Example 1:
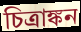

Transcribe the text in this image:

চিত্রাঙ্কন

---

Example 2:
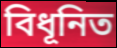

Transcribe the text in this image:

বিধূনিত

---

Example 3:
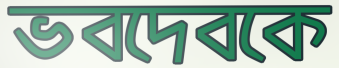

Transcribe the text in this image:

ভবদেবকে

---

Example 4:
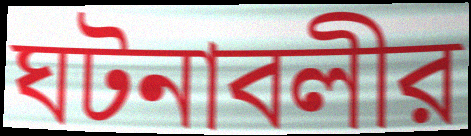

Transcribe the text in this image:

ঘটনাবলীর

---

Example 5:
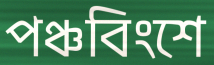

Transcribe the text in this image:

পঞ্চবিংশে